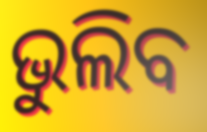
ଭୁଲିବ